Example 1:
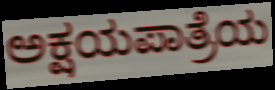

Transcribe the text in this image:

ಅಕ್ಷಯಪಾತ್ರೆಯ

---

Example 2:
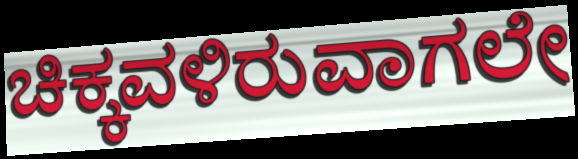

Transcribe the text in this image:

ಚಿಕ್ಕವಳಿರುವಾಗಲೇ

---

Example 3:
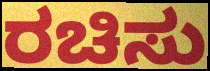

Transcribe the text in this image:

ರಚಿಸು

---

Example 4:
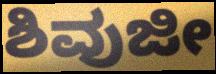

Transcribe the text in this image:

ಶಿವುಜೀ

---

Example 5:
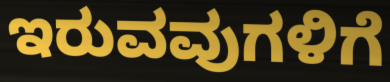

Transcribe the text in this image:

ಇರುವವುಗಳಿಗೆ